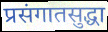
प्रसंगातसुद्धा